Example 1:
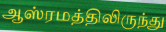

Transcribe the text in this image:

ஆஸ்ரமத்திலிருந்து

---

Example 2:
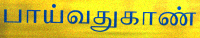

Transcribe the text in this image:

பாய்வதுகாண்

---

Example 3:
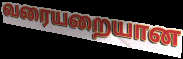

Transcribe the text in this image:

வரையறையான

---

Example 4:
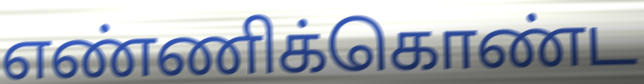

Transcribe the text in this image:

எண்ணிக்கொண்ட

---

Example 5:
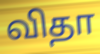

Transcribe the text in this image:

விதா